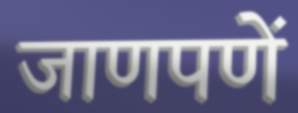
जाणपणें